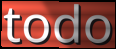
todo